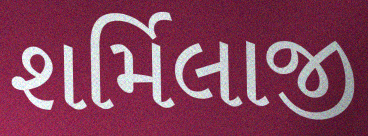
શર્મિલાજી